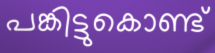
പങ്കിട്ടുകൊണ്ട്